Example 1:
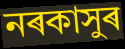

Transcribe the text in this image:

নৰকাসুৰ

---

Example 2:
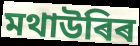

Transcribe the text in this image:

মথাউৰিৰ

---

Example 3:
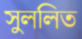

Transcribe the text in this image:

সুললিত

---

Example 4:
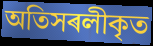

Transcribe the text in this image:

অতিসৰলীকৃত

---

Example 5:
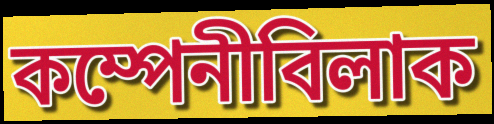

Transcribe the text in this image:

কম্পেনীবিলাক